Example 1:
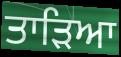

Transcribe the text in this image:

ਤਾੜਿਆ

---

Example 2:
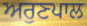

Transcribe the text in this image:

ਅਰੁਣਪਾਲ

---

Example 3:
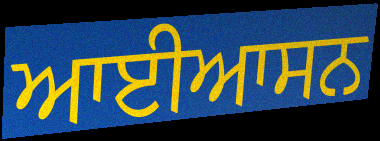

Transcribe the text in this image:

ਆਈਆਸਨ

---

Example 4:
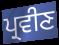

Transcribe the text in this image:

ਪ੍ਰਵੀਣ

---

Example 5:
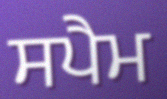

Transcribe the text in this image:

ਸਪੈਮ